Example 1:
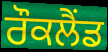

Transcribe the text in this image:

ਰੌਕਲੈਂਡ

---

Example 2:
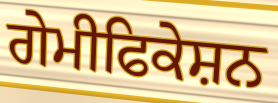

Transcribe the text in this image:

ਗੇਮੀਫਿਕੇਸ਼ਨ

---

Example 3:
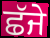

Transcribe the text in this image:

ਛੱਜੇ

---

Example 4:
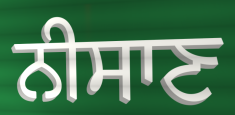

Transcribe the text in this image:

ਨੀਸਾਣ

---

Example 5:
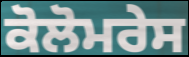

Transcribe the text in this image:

ਕੋਲੋਮਰੇਸ